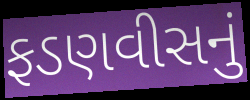
ફડણવીસનું